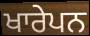
ਖਾਰੇਪਨ